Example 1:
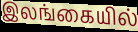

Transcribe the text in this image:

இலங்கையில்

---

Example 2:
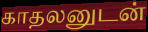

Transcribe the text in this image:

காதலனுடன்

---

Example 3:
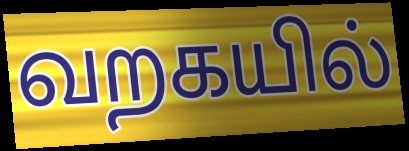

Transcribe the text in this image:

வறகயில்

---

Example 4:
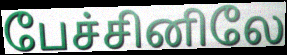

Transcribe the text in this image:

பேச்சினிலே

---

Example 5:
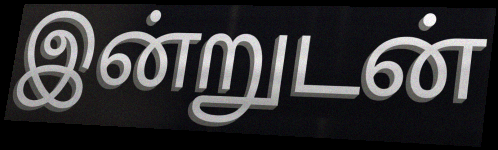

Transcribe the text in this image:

இன்றுடன்